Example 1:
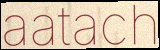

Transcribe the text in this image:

aatach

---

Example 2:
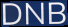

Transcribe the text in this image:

DNB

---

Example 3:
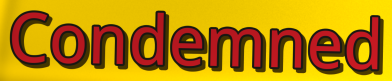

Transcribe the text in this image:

Condemned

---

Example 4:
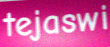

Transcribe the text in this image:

tejaswi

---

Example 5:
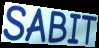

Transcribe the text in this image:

SABIT